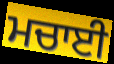
ਮਚਾਈ